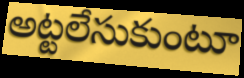
అట్టలేసుకుంటూ